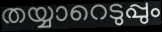
തയ്യാറെടുപ്പും